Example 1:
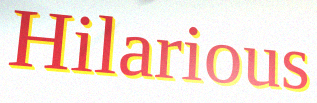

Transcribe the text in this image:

Hilarious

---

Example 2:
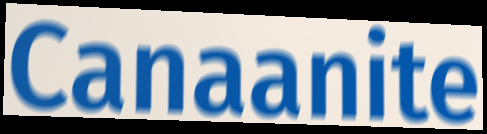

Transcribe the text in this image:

Canaanite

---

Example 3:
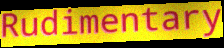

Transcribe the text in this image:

Rudimentary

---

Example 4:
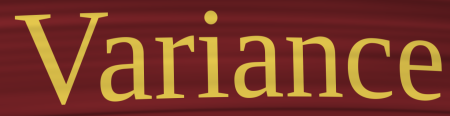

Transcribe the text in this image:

Variance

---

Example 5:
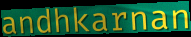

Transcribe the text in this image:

andhkarnan